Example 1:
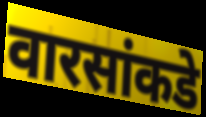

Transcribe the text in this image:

वारसांकडे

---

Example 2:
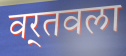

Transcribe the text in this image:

वर्तवला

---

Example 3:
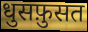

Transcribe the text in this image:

धुसफ़ुसत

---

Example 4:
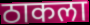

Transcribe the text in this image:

ठाकला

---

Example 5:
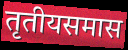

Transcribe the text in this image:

तृतीयसमास